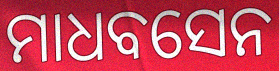
ମାଧବସେନ